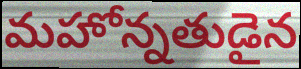
మహోన్నతుడైన